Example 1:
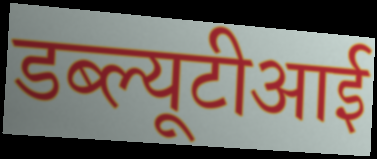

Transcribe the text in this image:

डब्ल्यूटीआई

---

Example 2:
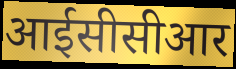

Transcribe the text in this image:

आईसीसीआर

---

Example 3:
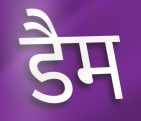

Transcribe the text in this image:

डैम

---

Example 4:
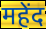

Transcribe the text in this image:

महेंद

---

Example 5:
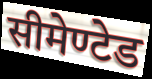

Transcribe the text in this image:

सीमेण्टेड